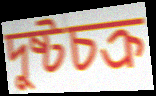
দুষ্টচক্র